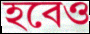
হবেও